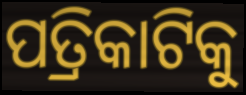
ପତ୍ରିକାଟିକୁ